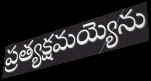
ప్రత్యక్షమయ్యెను